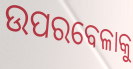
ଉପରବେଳାକୁ